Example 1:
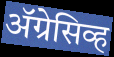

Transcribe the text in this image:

ॲग्रेसिव्ह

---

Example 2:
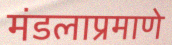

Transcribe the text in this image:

मंडलाप्रमाणे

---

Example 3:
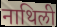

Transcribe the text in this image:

नाथिली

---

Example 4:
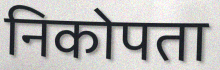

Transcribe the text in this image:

निकोपता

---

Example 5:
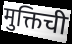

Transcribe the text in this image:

मुक्तिची